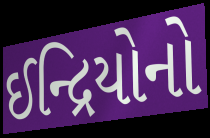
ઈન્દ્રિયોનો